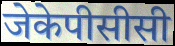
जेकेपीसीसी